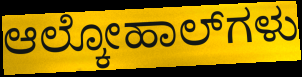
ಆಲ್ಕೋಹಾಲ್‌ಗಳು